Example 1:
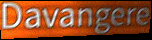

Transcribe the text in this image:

Davangere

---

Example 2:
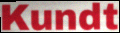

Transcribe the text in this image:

Kundt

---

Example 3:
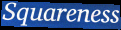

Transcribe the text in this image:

Squareness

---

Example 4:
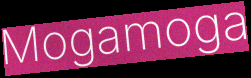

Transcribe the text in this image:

Mogamoga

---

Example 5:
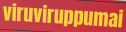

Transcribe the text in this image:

viruviruppumai